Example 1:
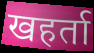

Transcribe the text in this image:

खहर्ता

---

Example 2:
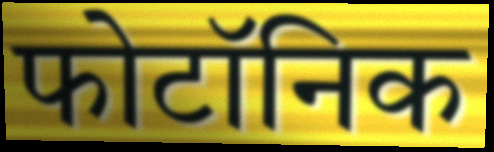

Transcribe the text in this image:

फोटॉनिक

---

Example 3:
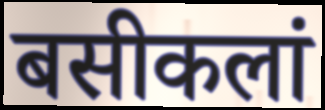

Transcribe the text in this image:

बसीकलां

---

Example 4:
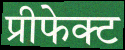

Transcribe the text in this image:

प्रीफेक्ट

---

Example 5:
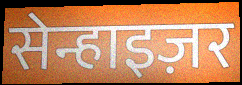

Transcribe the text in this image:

सेन्हाइज़र